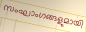
സംഘാംഗങ്ങളുമായി